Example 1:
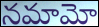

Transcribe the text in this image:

నమామో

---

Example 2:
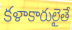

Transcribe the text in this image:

కళాకారులైతే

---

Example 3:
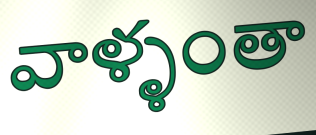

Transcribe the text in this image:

వాళ్ళంతా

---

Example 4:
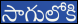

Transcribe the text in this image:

సాగులోకి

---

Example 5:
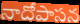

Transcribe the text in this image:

నాదోపాసన